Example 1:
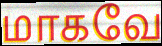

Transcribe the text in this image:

மாகவே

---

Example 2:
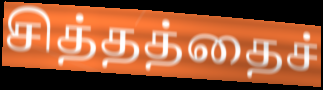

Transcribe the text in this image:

சித்தத்தைச்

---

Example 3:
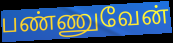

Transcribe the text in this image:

பண்ணுவேன்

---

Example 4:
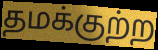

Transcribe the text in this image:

தமக்குற்ற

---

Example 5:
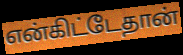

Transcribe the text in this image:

என்கிட்டேதான்